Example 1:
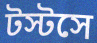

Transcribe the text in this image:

টস্টসে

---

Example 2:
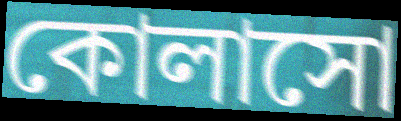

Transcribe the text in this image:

কোলাসো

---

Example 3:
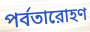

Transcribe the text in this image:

পর্বতারোহণ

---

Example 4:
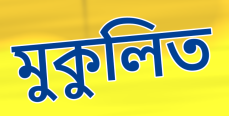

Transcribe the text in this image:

মুকুলিত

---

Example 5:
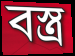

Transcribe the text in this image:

বস্ত্র